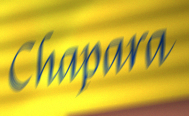
Chapara